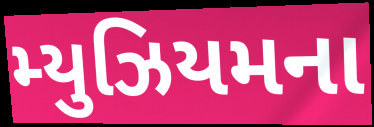
મ્યુઝિયમના